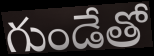
గుండేతో